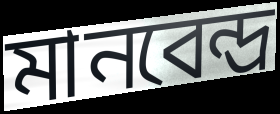
মানবেন্দ্র